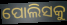
ପୋଲିସକୁ